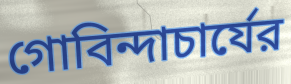
গোবিন্দাচার্যের